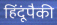
हिंदूंपैकी